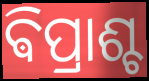
ଵିପ୍ରାଶ୍ଚ